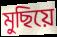
মুছিয়ে